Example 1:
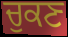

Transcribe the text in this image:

ਚੁਕਣ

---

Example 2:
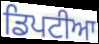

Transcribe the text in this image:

ਡਿਪਟੀਆ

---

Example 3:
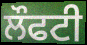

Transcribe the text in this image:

ਲੌਫਟੀ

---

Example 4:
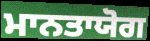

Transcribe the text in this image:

ਮਾਨਤਾਯੋਗ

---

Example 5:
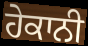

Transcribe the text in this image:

ਹੇਕਾਨੀ